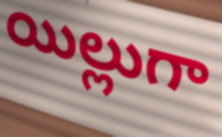
యిల్లుగా